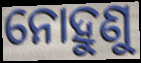
ନୋହୁଣୁ